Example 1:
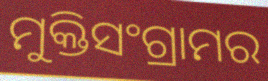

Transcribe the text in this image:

ମୁକ୍ତିସଂଗ୍ରାମର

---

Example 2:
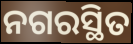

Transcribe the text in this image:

ନଗରସ୍ଥିତ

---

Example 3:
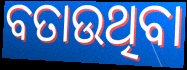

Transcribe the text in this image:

ବତାଉଥିବା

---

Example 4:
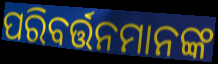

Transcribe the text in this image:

ପରିବର୍ତ୍ତନମାନଙ୍କ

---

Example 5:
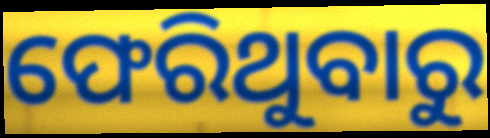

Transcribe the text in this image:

ଫେରିଥୁବାରୁ